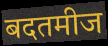
बदतमीज